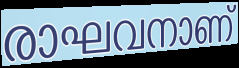
രാഘവനാണ്